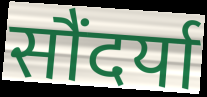
सौंदर्या